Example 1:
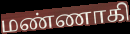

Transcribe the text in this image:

மண்ணாகி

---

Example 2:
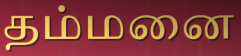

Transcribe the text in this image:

தம்மனை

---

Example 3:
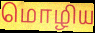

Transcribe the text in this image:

மொழிய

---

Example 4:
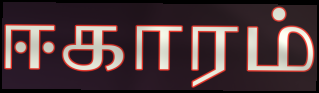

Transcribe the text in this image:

ஈகாரம்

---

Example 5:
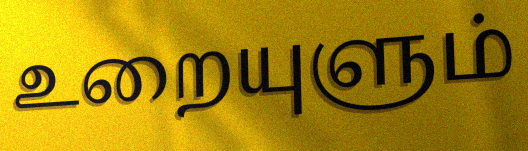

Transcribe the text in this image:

உறையுளும்